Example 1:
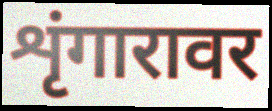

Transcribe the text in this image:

शृंगारावर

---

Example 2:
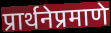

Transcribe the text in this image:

प्रार्थनेप्रमाणे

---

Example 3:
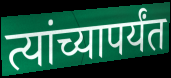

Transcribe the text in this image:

त्यांच्यापर्यंत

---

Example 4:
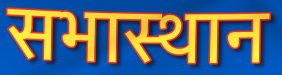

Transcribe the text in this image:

सभास्थान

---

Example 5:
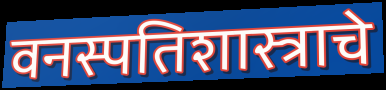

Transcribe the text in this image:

वनस्पतिशास्त्राचे